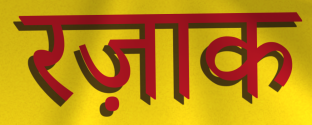
रज़ाक